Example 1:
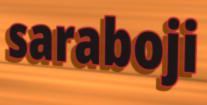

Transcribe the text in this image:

saraboji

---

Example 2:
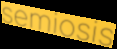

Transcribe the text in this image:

semiosis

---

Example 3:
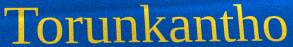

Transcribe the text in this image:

Torunkantho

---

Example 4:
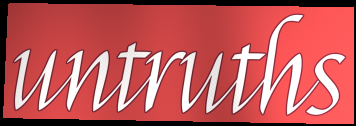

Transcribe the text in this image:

untruths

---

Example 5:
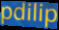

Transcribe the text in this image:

pdilip